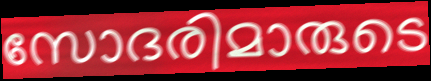
സോദരിമാരുടെ